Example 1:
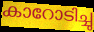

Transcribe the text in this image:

കാറോടിച്ചു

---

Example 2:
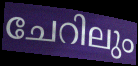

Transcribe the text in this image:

ചേറിലും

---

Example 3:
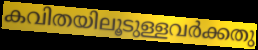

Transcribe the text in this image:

കവിതയിലൂടുള്ളവർക്കതു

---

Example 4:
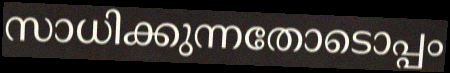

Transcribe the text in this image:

സാധിക്കുന്നതോടൊപ്പം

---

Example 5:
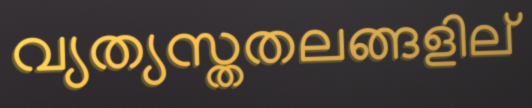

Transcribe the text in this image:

വ്യത്യസ്തതലങ്ങളില്